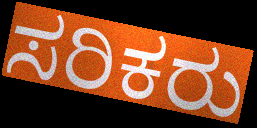
ಸರಿಕರು